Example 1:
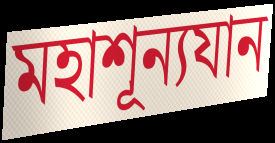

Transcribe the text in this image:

মহাশূন্যযান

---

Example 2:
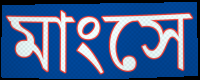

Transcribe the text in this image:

মাংসে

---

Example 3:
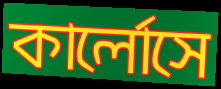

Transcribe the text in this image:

কার্লোসে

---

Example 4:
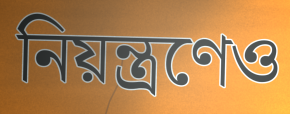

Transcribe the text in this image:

নিয়ন্ত্রণেও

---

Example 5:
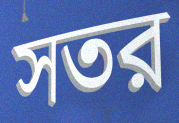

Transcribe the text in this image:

সতর